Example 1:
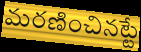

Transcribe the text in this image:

మరణించినట్టే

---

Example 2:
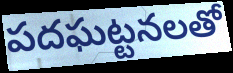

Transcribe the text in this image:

పదఘట్టనలతో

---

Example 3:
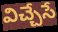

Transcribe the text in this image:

విచ్చేసే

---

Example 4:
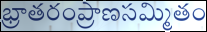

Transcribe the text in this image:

భ్రాతరంప్రాణసమ్మితం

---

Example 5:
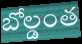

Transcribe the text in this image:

బోల్డంత